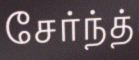
சேர்ந்த்